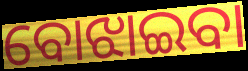
ବୋଝାଇବା